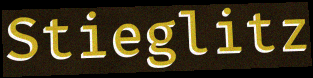
Stieglitz